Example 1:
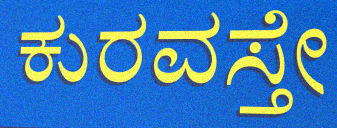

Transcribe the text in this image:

ಕುರವಸ್ತೇ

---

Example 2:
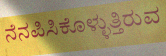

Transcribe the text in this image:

ನೆನಪಿಸಿಕೊಳ್ಳುತ್ತಿರುವ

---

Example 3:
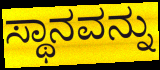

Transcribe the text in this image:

ಸ್ಥಾನವನ್ನು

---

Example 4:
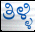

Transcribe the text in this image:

ತಿಳ್ಳಿ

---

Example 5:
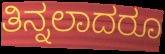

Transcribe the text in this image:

ತಿನ್ನಲಾದರೂ